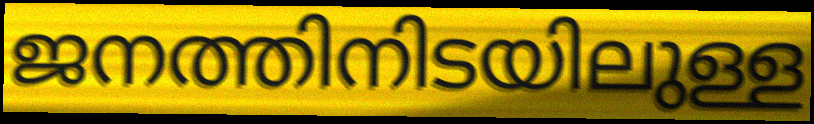
ജനത്തിനിടയിലുള്ള